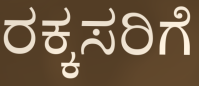
ರಕ್ಕಸರಿಗೆ